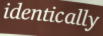
identically